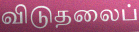
விடுதலைப்